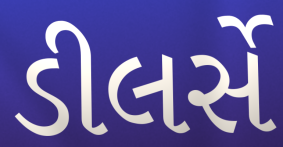
ડીલર્સે